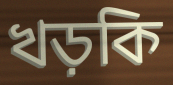
খড়কি